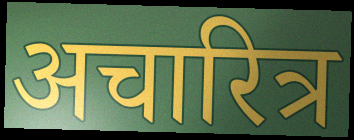
अचारित्र